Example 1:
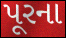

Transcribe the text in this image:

પૂરના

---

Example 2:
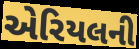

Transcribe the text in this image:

એરિયલની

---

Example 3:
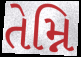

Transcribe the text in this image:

તેમ્નિ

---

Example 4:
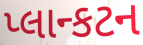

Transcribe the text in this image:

પ્લાન્કટન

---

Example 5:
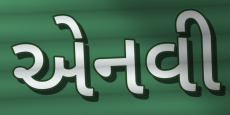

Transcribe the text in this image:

એનવી